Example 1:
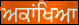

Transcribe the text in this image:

ਅਕਾਂਖਿਆ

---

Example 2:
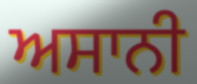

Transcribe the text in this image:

ਅਸਾਨੀ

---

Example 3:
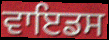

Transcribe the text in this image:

ਵਾਇਡਸ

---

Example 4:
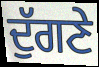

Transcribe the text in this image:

ਦੁੱਗਣੇ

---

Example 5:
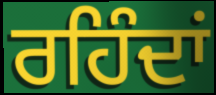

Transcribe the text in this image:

ਰਹਿੰਦਾਂ